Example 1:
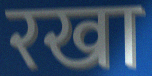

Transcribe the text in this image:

रखा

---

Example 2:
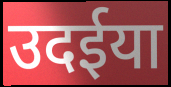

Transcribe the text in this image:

उदईया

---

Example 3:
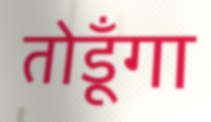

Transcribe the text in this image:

तोडूँगा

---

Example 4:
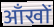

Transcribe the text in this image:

आँखों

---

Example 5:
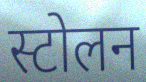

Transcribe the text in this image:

स्टोलन